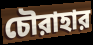
চৌরাহার